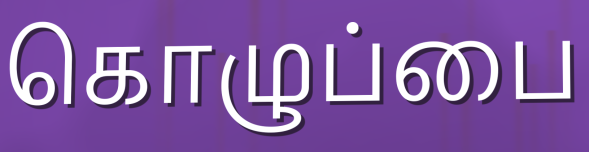
கொழுப்பை